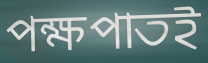
পক্ষপাতই